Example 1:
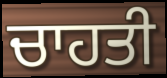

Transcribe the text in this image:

ਚਾਹਤੀ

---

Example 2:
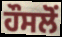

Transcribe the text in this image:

ਹੌਸਲੋਂ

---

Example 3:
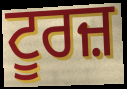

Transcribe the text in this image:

ਟੂਰਜ਼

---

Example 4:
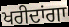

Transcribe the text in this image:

ਖਰੀਦਾਂਗਾ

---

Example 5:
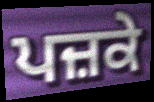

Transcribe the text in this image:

ਪਜ਼ਕੇ